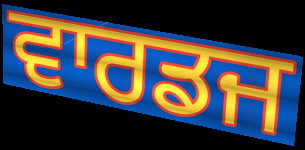
ਵਾਰਡਜ